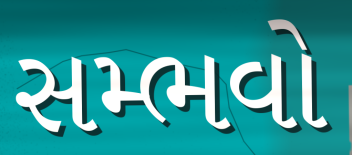
સમ્ભવો